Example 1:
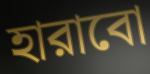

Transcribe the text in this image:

হারাবো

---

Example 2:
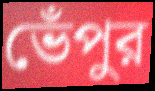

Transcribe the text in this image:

ভেঁপুর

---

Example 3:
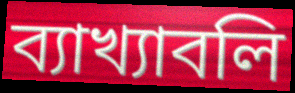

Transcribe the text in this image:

ব্যাখ্যাবলি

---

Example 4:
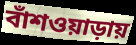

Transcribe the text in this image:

বাঁশওয়াড়ায়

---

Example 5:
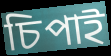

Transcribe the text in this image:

চিপাই